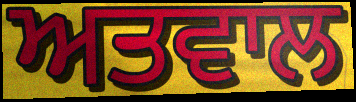
ਅਤਵਾਲ